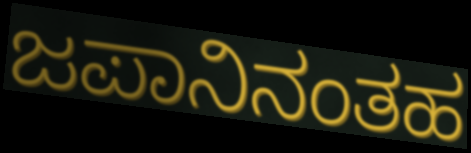
ಜಪಾನಿನಂತಹ